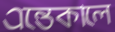
এন্তেকালে